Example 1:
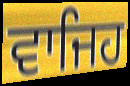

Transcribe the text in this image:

ਵਾਜਿਹ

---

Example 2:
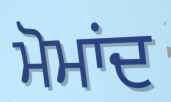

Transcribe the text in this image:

ਮੋਮਾਂਦ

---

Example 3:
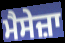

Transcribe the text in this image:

ਮੈਸੇਜ਼ਾ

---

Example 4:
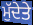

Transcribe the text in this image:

ਮੁੱਦੇਤੇ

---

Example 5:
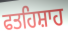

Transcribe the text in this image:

ਫਤਹਿਸ਼ਾਹ